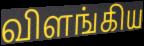
விளங்கிய